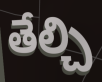
తేల్చి